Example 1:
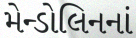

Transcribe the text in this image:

મેન્ડોલિનનાં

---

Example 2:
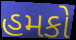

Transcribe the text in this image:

હમકો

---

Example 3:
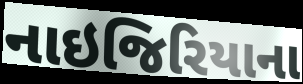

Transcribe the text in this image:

નાઇજિરિયાના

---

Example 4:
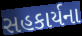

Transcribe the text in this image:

સહકાર્યના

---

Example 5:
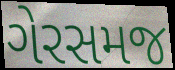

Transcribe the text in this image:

ગેરસમજ